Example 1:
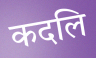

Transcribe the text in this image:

कदलि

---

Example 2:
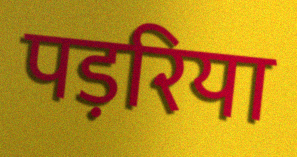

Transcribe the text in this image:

पड़रिया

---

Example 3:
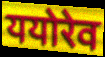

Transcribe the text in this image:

ययोरेव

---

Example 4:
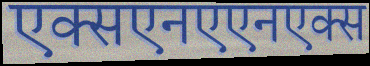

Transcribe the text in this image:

एक्सएनएएनएक्स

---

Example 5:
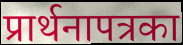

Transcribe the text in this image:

प्रार्थनापत्रका